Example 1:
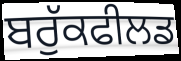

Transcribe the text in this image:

ਬਰੁੱਕਫੀਲਡ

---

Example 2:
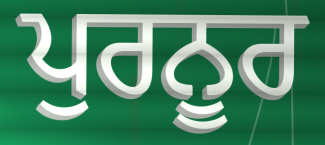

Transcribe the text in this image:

ਪੁਰਨੂਰ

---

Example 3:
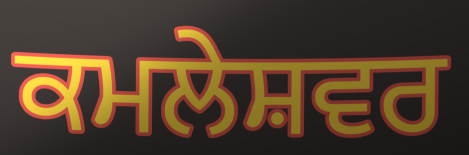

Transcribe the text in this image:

ਕਮਲੇਸ਼ਵਰ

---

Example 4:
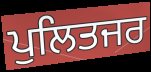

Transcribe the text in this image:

ਪੁਲਿਤਜਰ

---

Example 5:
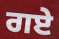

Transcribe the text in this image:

ਗਏ